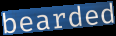
bearded